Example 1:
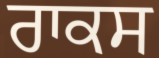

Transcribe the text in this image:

ਰਾਕਸ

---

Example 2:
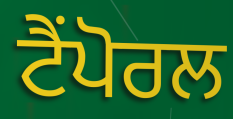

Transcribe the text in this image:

ਟੈਂਪੋਰਲ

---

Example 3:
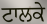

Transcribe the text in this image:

ਟਾਲਕੇ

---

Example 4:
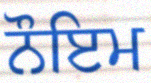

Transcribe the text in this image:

ਨੌਇਮ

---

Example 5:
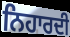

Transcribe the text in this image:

ਨਿਹਾਰਦੀ